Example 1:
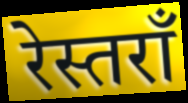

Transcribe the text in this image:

रेस्तराँ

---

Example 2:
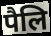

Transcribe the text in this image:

पैलि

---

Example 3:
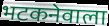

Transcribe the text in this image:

भटकनेवाला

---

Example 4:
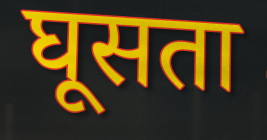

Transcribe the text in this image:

घूसता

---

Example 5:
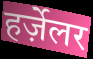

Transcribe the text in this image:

हर्ज़ेलर